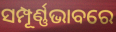
ସମ୍ପୂର୍ଣ୍ଣଭାବରେ